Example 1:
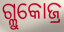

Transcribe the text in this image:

ଗ୍ଲୁକୋଜ୍ର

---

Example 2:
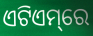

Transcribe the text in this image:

ଏଟିଏମ୍‌ରେ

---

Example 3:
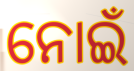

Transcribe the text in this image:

ନୋଇଁ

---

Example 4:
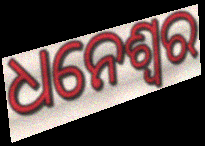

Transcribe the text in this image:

ଧନେଶ୍ବର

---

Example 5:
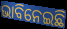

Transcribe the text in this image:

ଭାବିନେଇଛି